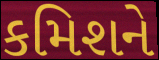
કમિશને